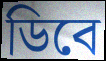
ডিবে